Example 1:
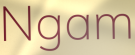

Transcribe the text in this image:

Ngam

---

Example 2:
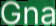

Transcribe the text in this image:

Gna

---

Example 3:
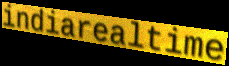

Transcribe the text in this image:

indiarealtime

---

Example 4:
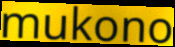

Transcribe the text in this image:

mukono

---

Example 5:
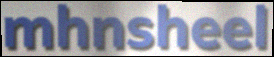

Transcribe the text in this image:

mhnsheel